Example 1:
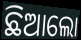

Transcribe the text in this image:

ଛିଆଲୋ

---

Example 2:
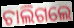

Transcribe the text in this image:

ଚାଲିଗଲେ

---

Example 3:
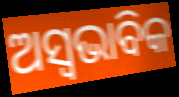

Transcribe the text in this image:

ଅସ୍ୱଭାବିକ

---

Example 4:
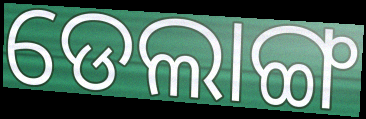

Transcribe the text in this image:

ଡେଲାଙ୍ଗ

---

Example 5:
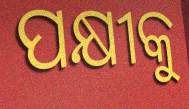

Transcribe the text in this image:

ପକ୍ଷୀକୁ